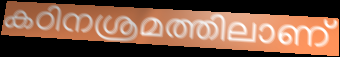
കഠിനശ്രമത്തിലാണ്